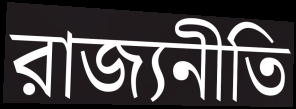
রাজ্যনীতি